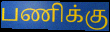
பணிக்கு